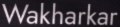
Wakharkar